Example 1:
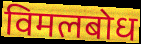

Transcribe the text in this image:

विमलबोध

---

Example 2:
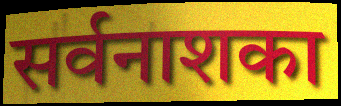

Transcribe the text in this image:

सर्वनाशका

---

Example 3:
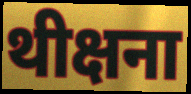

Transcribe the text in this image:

थीक्षना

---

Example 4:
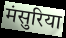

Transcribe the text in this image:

मंसुरिया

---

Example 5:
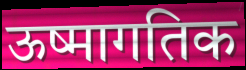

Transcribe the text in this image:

ऊष्मागतिक